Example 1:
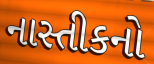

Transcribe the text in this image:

નાસ્તીકનો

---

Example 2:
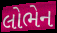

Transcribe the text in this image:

લોભેન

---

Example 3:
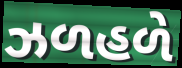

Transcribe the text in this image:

ઝળહળે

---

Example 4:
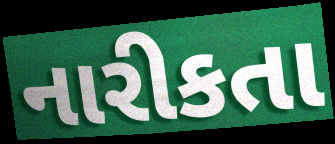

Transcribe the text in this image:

નારીકતા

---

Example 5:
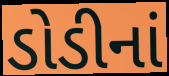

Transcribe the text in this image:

ડોડીનાં